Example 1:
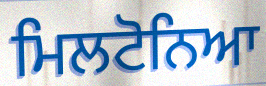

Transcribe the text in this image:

ਮਿਲਟੋਨਿਆ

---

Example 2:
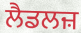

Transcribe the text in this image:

ਲੈਡਲਜ਼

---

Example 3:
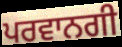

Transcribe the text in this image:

ਪਰਵਾਨਗੀ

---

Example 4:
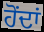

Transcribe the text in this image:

ਹੋਂਦਾਂ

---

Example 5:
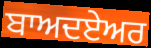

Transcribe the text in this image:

ਬਾਅਦਏਅਰ